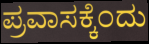
ಪ್ರವಾಸಕ್ಕೆಂದು